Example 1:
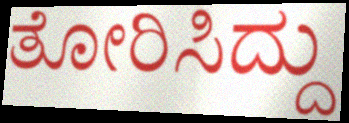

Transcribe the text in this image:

ತೋರಿಸಿದ್ದು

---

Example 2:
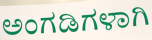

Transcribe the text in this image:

ಅಂಗಡಿಗಳಾಗಿ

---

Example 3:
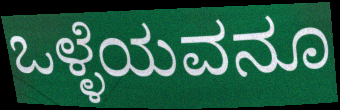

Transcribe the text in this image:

ಒಳ್ಳೆಯವನೂ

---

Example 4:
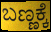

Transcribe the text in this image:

ಬಣ್ಣಕ್ಕೆ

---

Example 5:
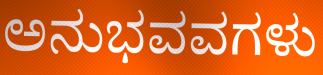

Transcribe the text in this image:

ಅನುಭವವಗಳು